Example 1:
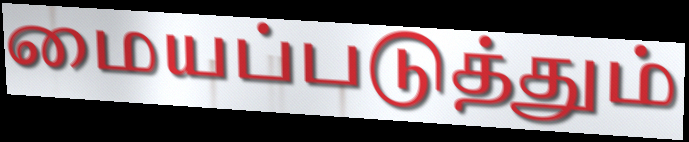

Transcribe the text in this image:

மையப்படுத்தும்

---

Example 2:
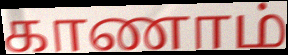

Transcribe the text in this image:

காணாம்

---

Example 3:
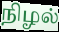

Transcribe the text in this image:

நிழல்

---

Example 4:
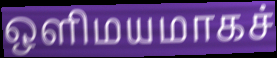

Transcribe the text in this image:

ஒளிமயமாகச்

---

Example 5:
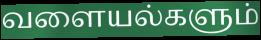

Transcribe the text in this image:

வளையல்களும்